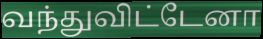
வந்துவிட்டேனா